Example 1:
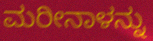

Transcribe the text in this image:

ಮರೀನಾಳನ್ನು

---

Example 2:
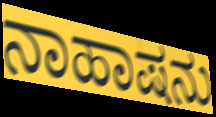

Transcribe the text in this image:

ನಾಹಾಷನು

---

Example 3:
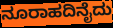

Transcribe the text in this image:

ನೂರಾಹದಿನೈದು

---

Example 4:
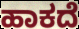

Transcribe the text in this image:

ಹಾಕದೆ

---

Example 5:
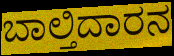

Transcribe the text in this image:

ಬಾಲ್ತಿದಾರನ